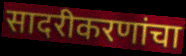
सादरीकरणांचा